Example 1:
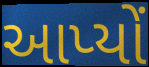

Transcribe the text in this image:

આપ્યોં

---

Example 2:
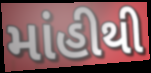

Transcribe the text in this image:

માંહીથી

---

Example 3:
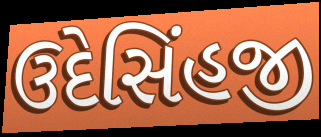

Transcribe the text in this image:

ઉદેસિંહજી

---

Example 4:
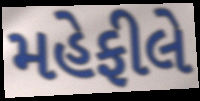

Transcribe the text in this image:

મહેફીલે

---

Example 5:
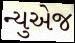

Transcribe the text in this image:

ન્યુએજ